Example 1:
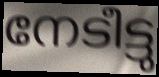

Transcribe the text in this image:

നേടീട്ടു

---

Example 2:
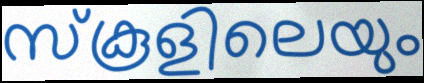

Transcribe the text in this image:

സ്കൂളിലെയും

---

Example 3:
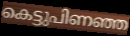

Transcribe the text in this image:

കെട്ടുപിണഞ്ഞ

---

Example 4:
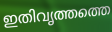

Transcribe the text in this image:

ഇതിവൃത്തത്തെ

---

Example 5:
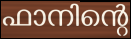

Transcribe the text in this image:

ഫാനിന്റെ